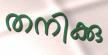
തനിക്കു